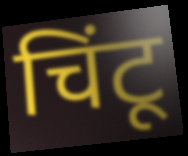
चिंटू